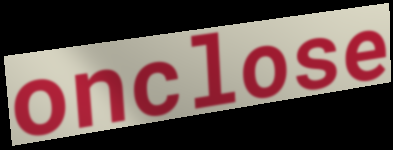
onclose